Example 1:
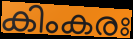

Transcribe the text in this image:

കിംകരഃ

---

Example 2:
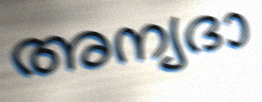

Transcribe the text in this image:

അന്യദാ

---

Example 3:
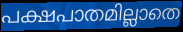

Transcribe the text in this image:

പക്ഷപാതമില്ലാതെ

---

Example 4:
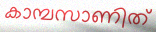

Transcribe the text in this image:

കാമ്പസാണിത്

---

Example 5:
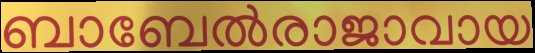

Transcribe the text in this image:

ബാബേൽരാജാവായ